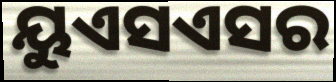
ୟୁଏସଏସର